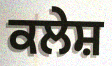
ਕਲੇਸ਼